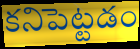
కనిపెట్టడం